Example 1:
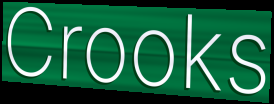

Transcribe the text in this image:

Crooks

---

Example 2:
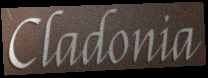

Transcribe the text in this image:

Cladonia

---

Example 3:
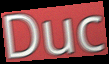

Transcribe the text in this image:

Duc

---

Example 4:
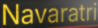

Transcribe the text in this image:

Navaratri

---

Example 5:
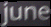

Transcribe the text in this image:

june